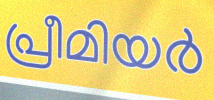
പ്രീമിയർ